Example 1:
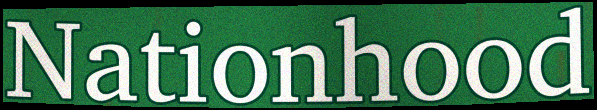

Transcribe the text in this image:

Nationhood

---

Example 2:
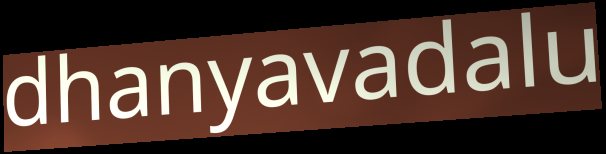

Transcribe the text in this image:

dhanyavadalu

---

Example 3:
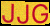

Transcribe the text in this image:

JJG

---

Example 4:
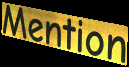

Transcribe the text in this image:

Mention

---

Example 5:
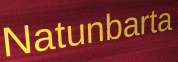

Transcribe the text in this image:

Natunbarta